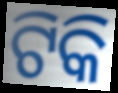
ଟିକି